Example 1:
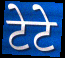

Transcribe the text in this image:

टेटे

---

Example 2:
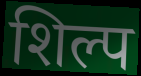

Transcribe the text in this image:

शिल्प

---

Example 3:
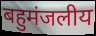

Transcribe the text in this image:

बहुमंजलीय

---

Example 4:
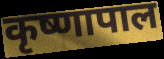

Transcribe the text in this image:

कृष्णापाल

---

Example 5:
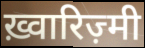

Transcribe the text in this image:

ख़्वारिज़्मी